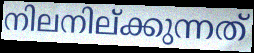
നിലനില്ക്കുന്നത്